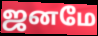
ஜனமே